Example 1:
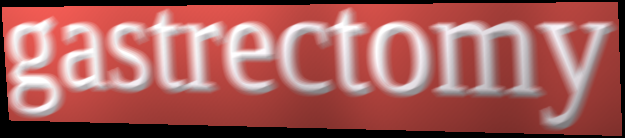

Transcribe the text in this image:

gastrectomy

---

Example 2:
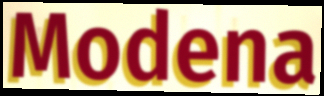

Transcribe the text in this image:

Modena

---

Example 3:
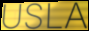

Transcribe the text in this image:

USLA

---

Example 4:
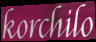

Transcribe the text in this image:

korchilo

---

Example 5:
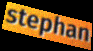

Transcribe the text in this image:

stephan